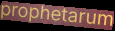
prophetarum